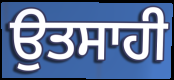
ਉਤਸਾਹੀ